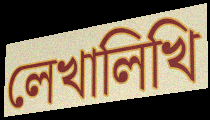
লেখালিখি